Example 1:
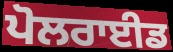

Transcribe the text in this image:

ਪੋਲਰਾਈਡ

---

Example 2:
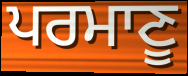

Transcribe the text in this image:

ਪਰਮਾਣੂ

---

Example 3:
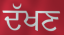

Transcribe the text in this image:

ਦੱਖਣ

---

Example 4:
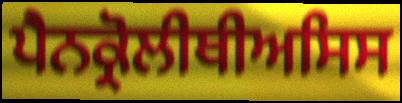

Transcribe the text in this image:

ਪੈਨਕ੍ਰੋਲੀਥੀਅਸਿਸ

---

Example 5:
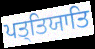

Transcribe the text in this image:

ਪਤ੍ਤਿਯਾਤਿ